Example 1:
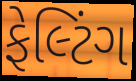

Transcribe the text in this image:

ફેલ્ટિંગ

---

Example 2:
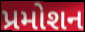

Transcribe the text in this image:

પ્રમોશન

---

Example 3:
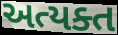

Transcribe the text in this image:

અત્યક્ત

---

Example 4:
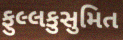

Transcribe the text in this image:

ફુલ્લકુસુમિત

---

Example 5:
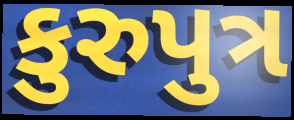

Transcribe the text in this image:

કુરુપુત્ર